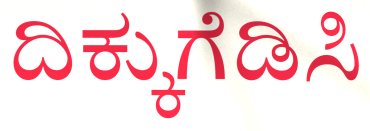
ದಿಕ್ಕುಗೆಡಿಸಿ